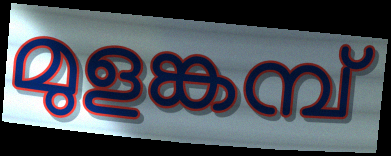
മുളങ്കമ്പ്